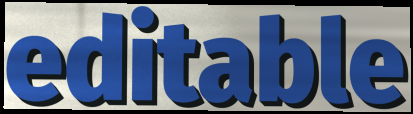
editable